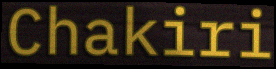
Chakiri